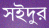
সইদুর